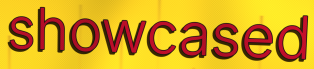
showcased